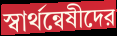
স্বার্থন্বেষীদের